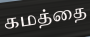
கமத்தை